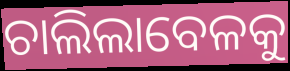
ଚାଲିଲାବେଳକୁ